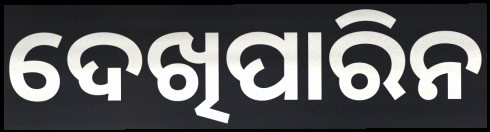
ଦେଖିପାରିନ